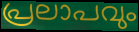
പ്രലാപവും